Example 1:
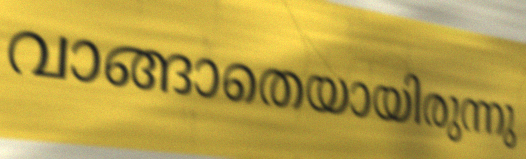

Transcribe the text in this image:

വാങ്ങാതെയായിരുന്നു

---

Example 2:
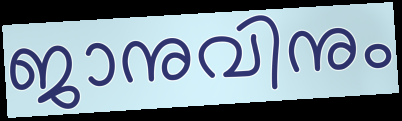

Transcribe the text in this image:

ജാനുവിനും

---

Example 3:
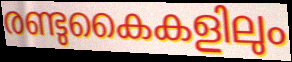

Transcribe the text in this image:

രണ്ടുകൈകളിലും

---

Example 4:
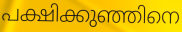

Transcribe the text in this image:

പക്ഷിക്കുഞ്ഞിനെ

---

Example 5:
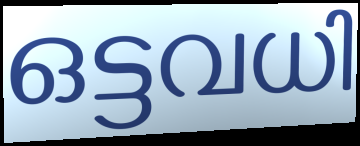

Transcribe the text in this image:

ഒട്ടവധി